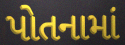
પોતનામાં